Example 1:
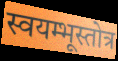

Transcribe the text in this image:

स्वयम्भूस्तोत्र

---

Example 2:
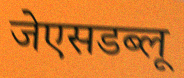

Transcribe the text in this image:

जेएसडब्‍लू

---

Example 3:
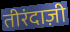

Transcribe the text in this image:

तीरंदाज़ी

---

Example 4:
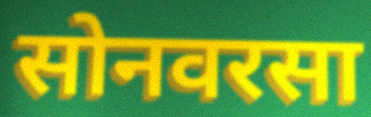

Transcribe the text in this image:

सोनवरसा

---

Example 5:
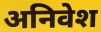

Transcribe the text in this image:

अनिवेश